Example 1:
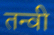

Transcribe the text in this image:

तन्वी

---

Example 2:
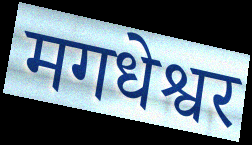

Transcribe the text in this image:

मगधेश्वर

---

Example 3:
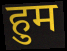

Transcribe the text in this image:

हुम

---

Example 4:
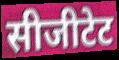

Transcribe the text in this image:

सीजीटेट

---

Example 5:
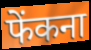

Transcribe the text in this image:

फेंकना